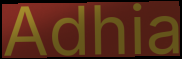
Adhia